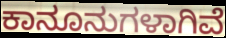
ಕಾನೂನುಗಳಾಗಿವೆ